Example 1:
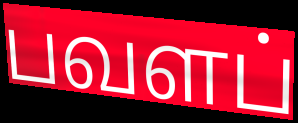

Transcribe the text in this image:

பவளப்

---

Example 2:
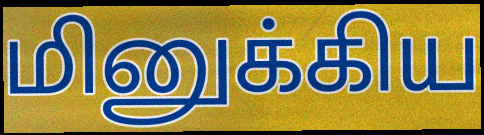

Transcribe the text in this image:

மினுக்கிய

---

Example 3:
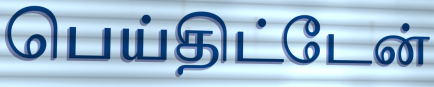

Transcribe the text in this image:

பெய்திட்டேன்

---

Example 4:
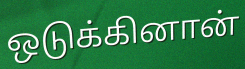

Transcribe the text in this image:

ஒடுக்கினான்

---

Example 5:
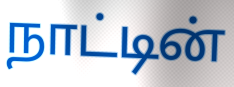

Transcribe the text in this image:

நாட்டின்